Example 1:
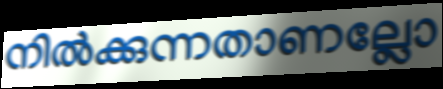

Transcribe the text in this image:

നിൽക്കുന്നതാണല്ലോ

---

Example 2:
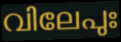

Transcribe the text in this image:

വിലേപുഃ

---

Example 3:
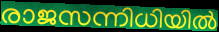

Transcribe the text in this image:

രാജസന്നിധിയിൽ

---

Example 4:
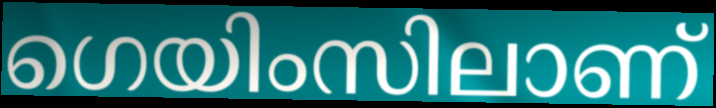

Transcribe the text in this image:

ഗെയിംസിലാണ്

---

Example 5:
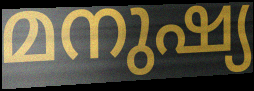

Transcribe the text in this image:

മനുഷ്യ